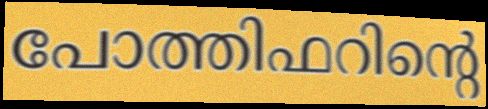
പോത്തിഫറിന്റെ